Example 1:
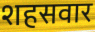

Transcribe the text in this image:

शहसवार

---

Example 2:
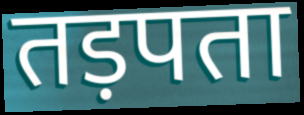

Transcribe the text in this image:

तड़पता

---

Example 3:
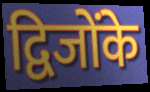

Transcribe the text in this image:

द्विजोंके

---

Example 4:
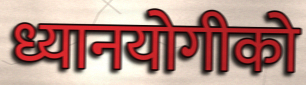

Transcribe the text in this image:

ध्यानयोगीको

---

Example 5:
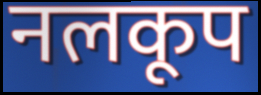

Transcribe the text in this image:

नलकूप